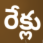
రేక్లు